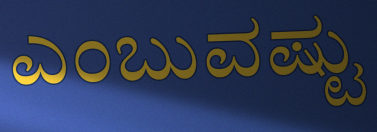
ಎಂಬುವಷ್ಟು